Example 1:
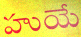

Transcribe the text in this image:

హుయే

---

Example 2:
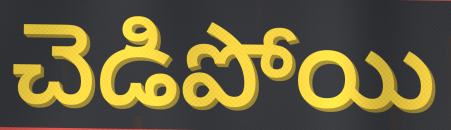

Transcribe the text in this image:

చెడిపోయి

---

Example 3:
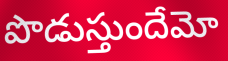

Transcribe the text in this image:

పొడుస్తుందేమో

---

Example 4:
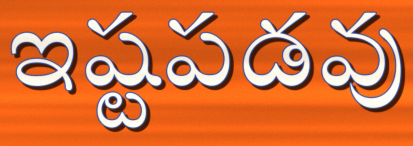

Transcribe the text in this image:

ఇష్టపడవు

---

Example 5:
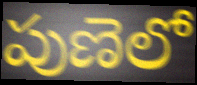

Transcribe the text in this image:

పుణెలో